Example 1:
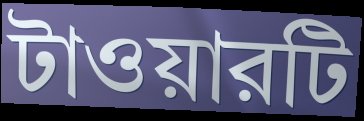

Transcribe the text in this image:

টাওয়ারটি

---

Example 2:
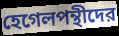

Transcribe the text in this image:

হেগেলপন্থীদের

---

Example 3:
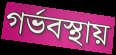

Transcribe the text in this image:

গর্ভবস্থায়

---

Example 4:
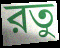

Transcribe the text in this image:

রতু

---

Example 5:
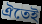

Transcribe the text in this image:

ঐতেই